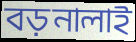
বড়নালাই